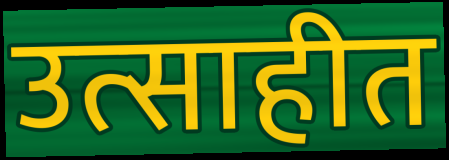
उत्साहीत